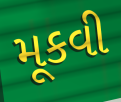
મૂકવી